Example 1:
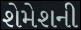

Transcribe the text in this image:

શેમેશની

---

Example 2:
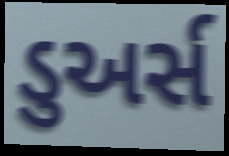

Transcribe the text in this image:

ડુઅર્સ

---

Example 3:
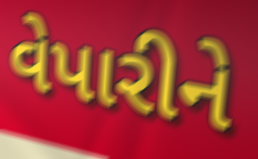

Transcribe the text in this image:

વેપારીને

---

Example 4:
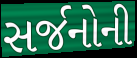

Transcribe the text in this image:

સર્જનોની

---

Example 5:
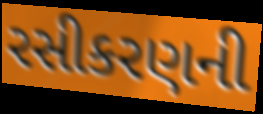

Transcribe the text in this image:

રસીકરણની